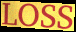
LOSS